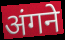
अंगने